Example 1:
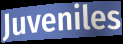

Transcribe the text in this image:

Juveniles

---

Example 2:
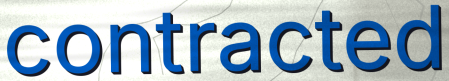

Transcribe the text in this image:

contracted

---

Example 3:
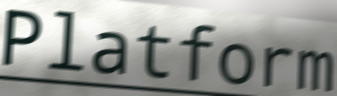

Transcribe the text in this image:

Platform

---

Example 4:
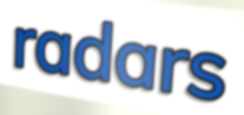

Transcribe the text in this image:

radars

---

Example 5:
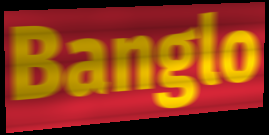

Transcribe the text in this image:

Banglo